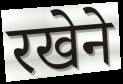
रखेने